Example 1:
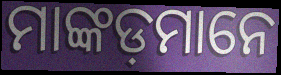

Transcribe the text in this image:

ମାଙ୍କଡ଼ମାନେ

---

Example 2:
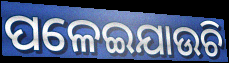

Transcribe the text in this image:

ପଳେଇଯାଉଚି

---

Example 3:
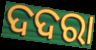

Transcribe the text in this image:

ଦଦରା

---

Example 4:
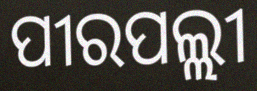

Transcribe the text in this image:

ପୀରପଲ୍ଲୀ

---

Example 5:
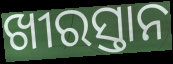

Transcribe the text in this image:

ଖୀରସ୍ତାନ